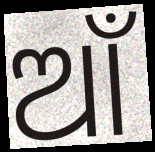
ଆଁ